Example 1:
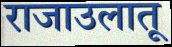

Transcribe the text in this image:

राजाउलातू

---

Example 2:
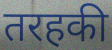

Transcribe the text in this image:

तरहकी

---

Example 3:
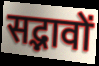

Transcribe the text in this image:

सद्भावों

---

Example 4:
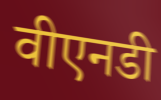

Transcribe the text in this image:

वीएनडी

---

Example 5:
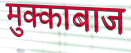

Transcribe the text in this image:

मुक्काबाज